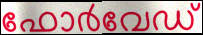
ഫോർവേഡ്